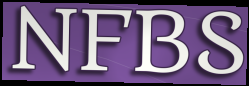
NFBS